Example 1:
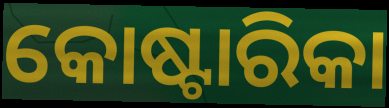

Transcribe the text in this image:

କୋଷ୍ଟାରିକା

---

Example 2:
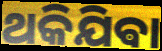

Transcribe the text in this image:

ଥକିଯିଵା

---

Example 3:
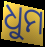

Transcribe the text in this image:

ଧୁମ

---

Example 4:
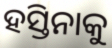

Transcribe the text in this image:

ହସ୍ତିନାକୁ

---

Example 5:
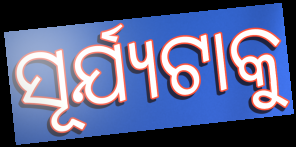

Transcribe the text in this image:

ସୂର୍ଯ୍ୟଟାକୁ